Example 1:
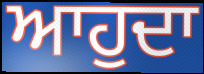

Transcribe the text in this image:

ਆਹੁਦਾ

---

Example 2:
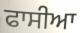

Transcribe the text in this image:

ਫਾਸੀਆ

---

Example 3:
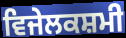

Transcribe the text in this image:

ਵਿਜੇਲਕਸ਼ਮੀ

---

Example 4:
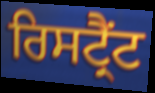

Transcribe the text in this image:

ਰਿਸਟ੍ਰੈਂਟ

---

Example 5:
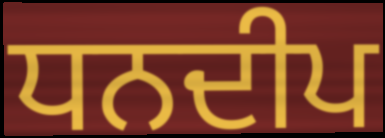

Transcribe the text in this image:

ਧਨਦੀਪ